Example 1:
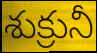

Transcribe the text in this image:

శుక్రునీ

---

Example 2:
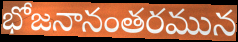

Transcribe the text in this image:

భోజనానంతరమున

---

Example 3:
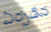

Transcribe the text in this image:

ఏర్పడిన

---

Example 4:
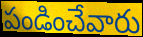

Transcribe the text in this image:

పండించేవారు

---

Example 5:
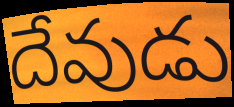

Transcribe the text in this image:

దేవుడు